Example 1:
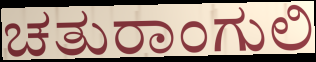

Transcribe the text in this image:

ಚತುರಾಂಗುಲಿ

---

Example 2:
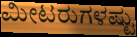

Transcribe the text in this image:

ಮೀಟರುಗಳಷ್ಟು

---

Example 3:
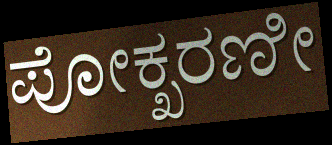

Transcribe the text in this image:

ಪೋಕ್ಖರಣೀ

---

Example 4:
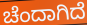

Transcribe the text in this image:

ಚೆಂದಾಗಿದೆ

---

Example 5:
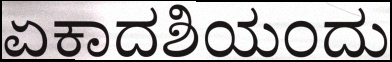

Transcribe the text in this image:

ಏಕಾದಶಿಯಂದು